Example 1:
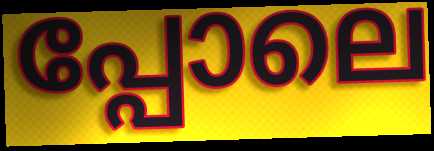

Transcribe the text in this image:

പ്പോലെ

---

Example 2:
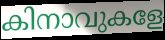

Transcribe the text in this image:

കിനാവുകളേ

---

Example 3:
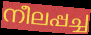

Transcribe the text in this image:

നീലപ്പച്ച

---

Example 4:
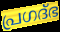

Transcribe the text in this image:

പ്രഗദ്ഭ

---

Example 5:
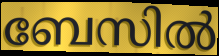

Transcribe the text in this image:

ബേസിൽ